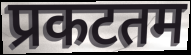
प्रकटतम